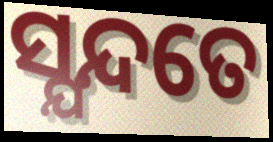
ସ୍ଯନ୍ଦତେ